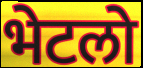
भेटलो